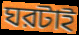
ঘরটাই